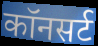
कॉनसर्ट